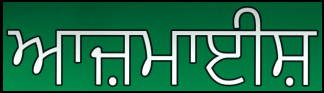
ਆਜ਼ਮਾਈਸ਼